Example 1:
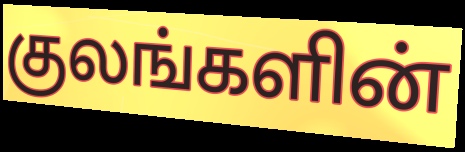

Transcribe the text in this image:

குலங்களின்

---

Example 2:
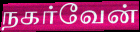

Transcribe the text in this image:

நகர்வேன்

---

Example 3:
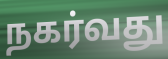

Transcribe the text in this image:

நகர்வது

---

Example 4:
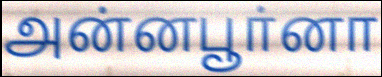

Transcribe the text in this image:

அன்னபூர்னா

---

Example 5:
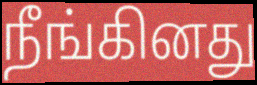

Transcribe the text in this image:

நீங்கினது